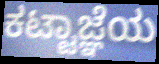
ಕಟ್ಟಾಜ್ಞೆಯ